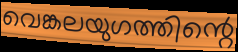
വെങ്കലയുഗത്തിന്റെ